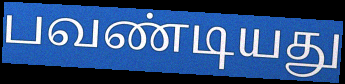
பவண்டியது